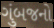
ગુંબજનો